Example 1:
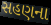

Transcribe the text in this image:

સહણના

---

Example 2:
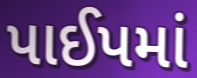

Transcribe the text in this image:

પાઈપમાં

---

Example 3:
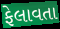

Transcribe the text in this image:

ફેલાવતા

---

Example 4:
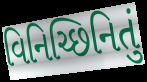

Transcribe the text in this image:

વિનિચ્છિનિતું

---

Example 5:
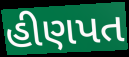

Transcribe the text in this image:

હીણપત